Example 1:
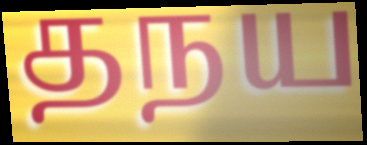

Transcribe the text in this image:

தநய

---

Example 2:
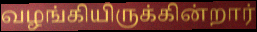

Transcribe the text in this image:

வழங்கியிருக்கின்றார்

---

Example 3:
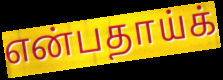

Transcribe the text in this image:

என்பதாய்க்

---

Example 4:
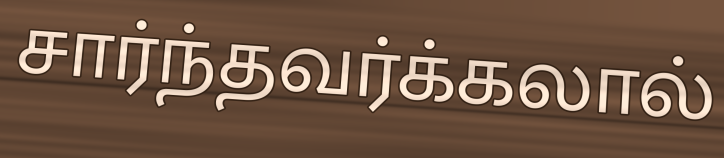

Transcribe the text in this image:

சார்ந்தவர்க்கலால்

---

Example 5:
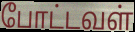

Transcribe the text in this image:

போட்டவள்